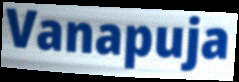
Vanapuja